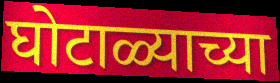
घोटाळ्याच्या